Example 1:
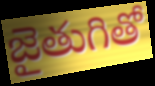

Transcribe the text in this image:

జైతుగితో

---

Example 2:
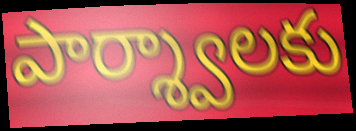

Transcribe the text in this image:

పార్శ్వాలకు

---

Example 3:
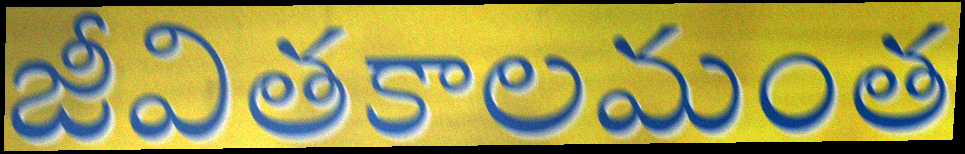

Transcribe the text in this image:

జీవితకాలమంత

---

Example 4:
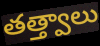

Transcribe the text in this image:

తత్త్వాలు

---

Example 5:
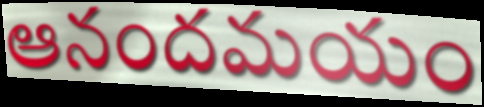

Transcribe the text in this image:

ఆనందమయం